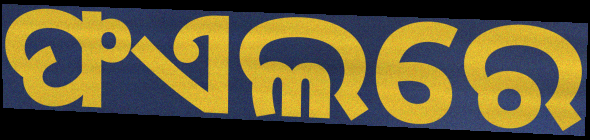
ଫଏଲରେ